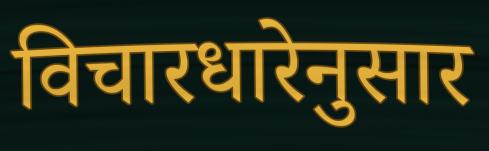
विचारधारेनुसार